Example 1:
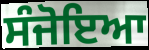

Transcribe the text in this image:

ਸੰਜੋਇਆ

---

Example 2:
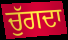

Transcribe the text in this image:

ਚੁੱਗਦਾ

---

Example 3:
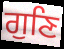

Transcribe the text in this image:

ਗੁਣਿ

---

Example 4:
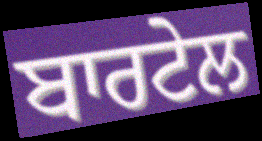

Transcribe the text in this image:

ਬਾਰਟੇਲ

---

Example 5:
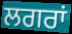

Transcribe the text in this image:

ਲਗਰਾਂ